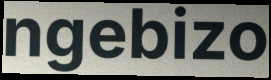
ngebizo